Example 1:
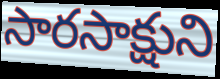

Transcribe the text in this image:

సారసాక్షుని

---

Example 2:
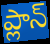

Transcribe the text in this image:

ప్లాన్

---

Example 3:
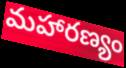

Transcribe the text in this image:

మహారణ్యం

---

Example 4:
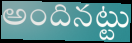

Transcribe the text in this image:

అందినట్టు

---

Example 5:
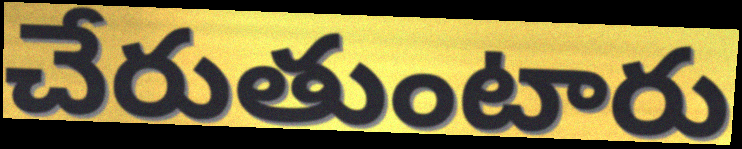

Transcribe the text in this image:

చేరుతుంటారు